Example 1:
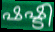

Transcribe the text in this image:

ഷഷ്ടി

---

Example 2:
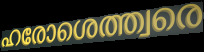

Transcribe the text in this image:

ഹരോശെത്ത്വരെ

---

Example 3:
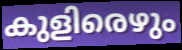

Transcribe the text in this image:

കുളിരെഴും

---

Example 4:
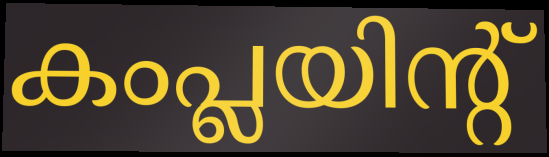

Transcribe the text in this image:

കംപ്ലയിന്റ്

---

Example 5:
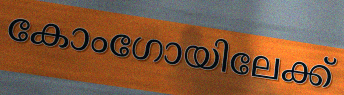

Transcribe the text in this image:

കോംഗോയിലേക്ക്